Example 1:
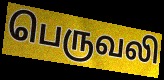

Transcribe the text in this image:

பெருவலி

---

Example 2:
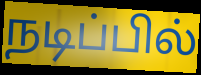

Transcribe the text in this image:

நடிப்பில்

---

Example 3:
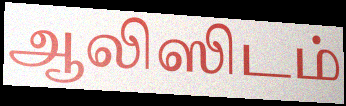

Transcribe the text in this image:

ஆலிஸிடம்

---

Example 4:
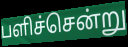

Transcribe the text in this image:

பளிச்சென்று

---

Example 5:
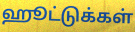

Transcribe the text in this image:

ஹூட்டுக்கள்